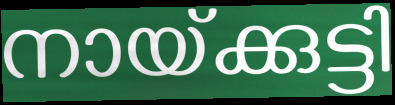
നായ്‌ക്കുട്ടി